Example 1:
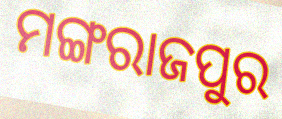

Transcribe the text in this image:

ମଙ୍ଗରାଜପୁର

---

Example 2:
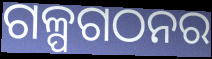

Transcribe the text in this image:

ଗଳ୍ପଗଠନର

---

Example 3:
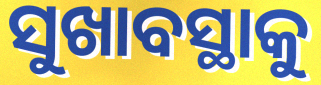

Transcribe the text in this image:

ସୁଖାବସ୍ଥାକୁ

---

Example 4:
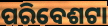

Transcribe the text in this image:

ପରିବେଶଟା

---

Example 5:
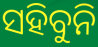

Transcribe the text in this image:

ସହିବୁନି